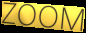
ZOOM